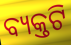
ବ୍ୟକ୍ତଟି